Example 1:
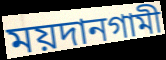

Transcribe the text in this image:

ময়দানগামী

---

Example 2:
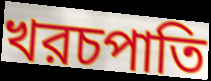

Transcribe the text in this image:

খরচপাতি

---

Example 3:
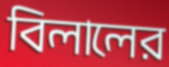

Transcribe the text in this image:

বিলালের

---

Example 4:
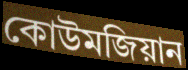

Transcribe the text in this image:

কোউমজিয়ান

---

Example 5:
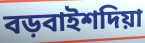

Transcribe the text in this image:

বড়বাইশদিয়া